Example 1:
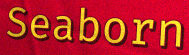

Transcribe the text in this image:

Seaborn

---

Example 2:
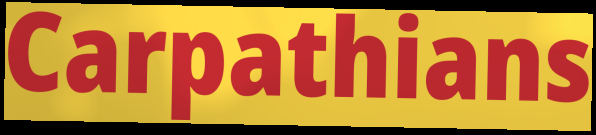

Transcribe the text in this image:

Carpathians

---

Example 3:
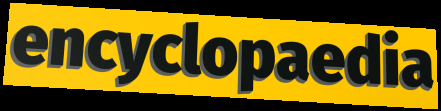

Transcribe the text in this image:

encyclopaedia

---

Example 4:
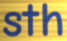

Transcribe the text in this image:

sth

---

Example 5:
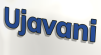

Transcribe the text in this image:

Ujavani